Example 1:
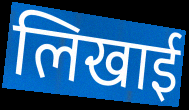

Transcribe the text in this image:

लिखाई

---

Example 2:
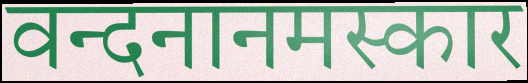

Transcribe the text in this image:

वन्दनानमस्कार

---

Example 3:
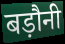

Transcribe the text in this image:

बड़ौनी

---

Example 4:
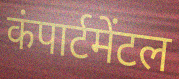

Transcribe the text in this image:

कंपार्टमेंटल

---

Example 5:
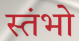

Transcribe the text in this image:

स्तंभो